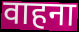
वाहना